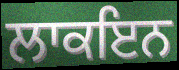
ਲਾਕਇਨ